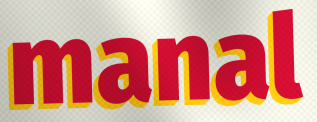
manal